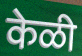
केळी